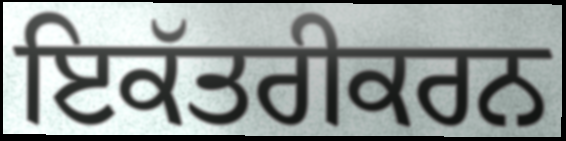
ਇਕੱਤਰੀਕਰਨ